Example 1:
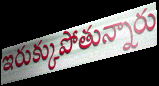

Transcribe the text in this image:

ఇరుక్కుపోతున్నారు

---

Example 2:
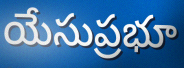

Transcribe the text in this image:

యేసుప్రభూ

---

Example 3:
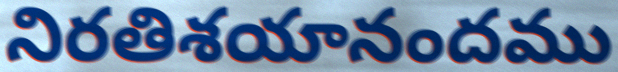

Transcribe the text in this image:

నిరతిశయానందము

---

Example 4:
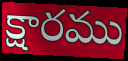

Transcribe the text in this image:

క్షారము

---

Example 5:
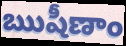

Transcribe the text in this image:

ఋషీణాం